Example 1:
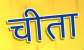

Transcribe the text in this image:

चीता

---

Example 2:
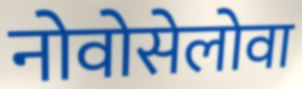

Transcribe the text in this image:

नोवोसेलोवा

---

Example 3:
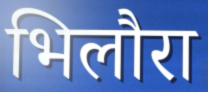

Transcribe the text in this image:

भिलौरा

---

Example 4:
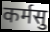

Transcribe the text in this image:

कर्मसु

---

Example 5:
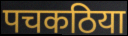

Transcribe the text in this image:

पचकठिया